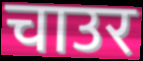
चाउर